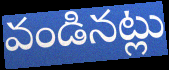
వండినట్లు